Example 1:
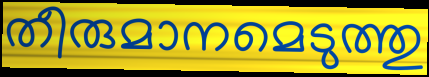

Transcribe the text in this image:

തീരുമാനമെടുത്തു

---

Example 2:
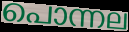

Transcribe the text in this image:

പൊന്നല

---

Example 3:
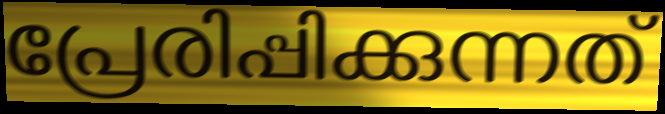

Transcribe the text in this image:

പ്രേരിപ്പിക്കുന്നത്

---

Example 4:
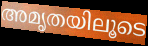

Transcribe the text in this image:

അമൃതയിലൂടെ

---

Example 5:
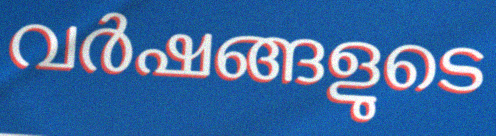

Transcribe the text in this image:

വർഷങ്ങളുടെ